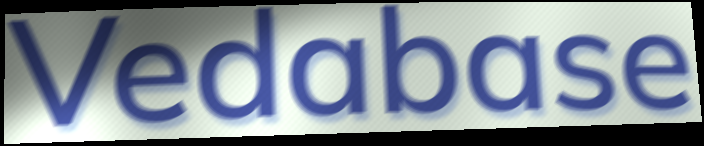
Vedabase